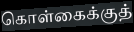
கொள்கைக்குத்